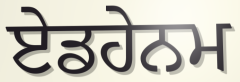
ਏਡਹੇਨਮ